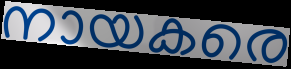
നായകരെ